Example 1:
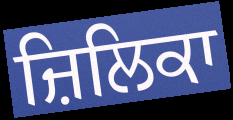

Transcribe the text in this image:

ਜ਼ਿਲਿਕਾ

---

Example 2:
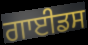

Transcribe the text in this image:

ਗਾਈਡਸ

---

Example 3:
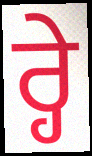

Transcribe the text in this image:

ਰ੍ਹੇ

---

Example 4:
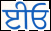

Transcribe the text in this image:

ਈਓ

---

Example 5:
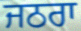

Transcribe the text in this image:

ਜਠਰਾ